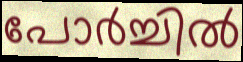
പോർച്ചിൽ